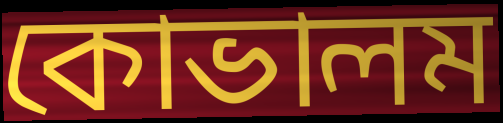
কোভালম